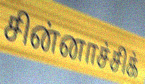
சின்னாச்சிக்